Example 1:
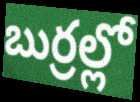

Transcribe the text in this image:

బుర్రల్లో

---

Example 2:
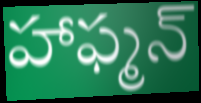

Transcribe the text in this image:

హాఫ్మన్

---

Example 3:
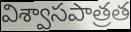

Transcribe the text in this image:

విశ్వాసపాత్రత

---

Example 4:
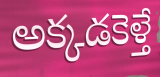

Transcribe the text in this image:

అక్కడకెళ్తే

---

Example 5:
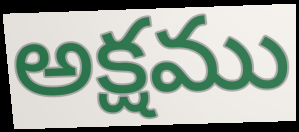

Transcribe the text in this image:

అక్షము